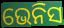
ଭେନିସ